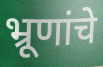
भ्रूणांचे